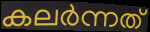
കലർന്നത്